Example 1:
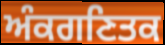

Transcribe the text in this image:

ਅੰਕਗਣਿਤਕ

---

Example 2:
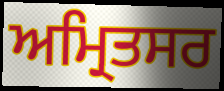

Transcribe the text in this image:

ਅਮ੍ਰਿਤਸਰ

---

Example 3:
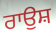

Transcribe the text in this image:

ਰਾਉਸ਼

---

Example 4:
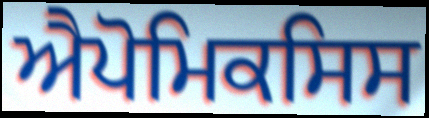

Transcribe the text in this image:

ਐਪੋਮਿਕਸਿਸ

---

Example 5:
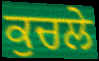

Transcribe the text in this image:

ਕੁਚਲੇ